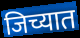
जिच्यात